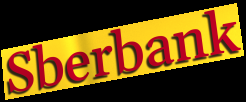
Sberbank